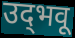
उद्‌भवू